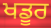
ਖਡੂਰ